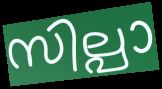
സില്പാ